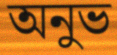
অনুভ